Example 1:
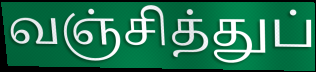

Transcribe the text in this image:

வஞ்சித்துப்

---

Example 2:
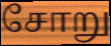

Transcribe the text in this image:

சோறு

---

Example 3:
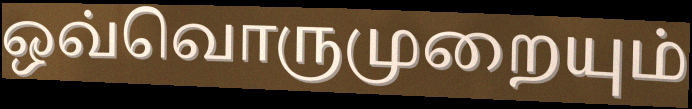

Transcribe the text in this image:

ஒவ்வொருமுறையும்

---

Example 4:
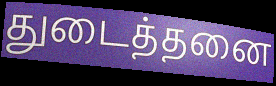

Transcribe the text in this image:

துடைத்தனை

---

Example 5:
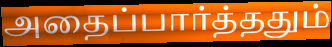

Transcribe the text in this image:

அதைப்பார்த்ததும்